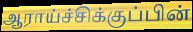
ஆராய்ச்சிக்குப்பின்